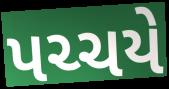
પચ્ચયે